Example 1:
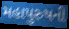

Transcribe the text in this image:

મહાપુરુષની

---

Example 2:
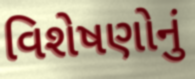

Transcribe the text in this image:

વિશેષણોનું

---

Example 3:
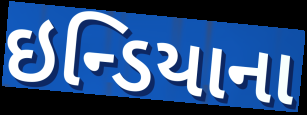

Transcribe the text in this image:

ઇન્ડિયાના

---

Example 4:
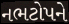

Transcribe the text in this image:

નભટોપને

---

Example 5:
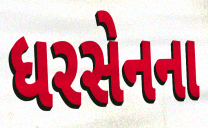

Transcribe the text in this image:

ધરસેનના